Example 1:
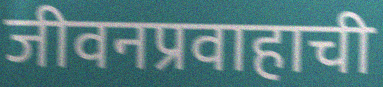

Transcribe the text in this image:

जीवनप्रवाहाची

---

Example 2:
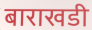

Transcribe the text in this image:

बाराखडी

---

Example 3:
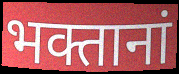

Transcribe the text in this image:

भक्तानां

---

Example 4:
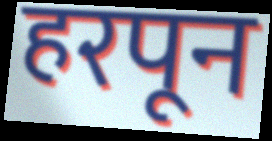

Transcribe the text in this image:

हरपून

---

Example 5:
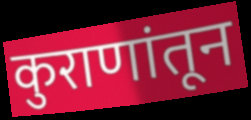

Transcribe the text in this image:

कुराणांतून